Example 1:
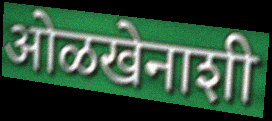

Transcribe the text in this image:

ओळखेनाशी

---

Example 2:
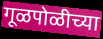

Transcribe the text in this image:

गूळपोळीच्या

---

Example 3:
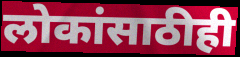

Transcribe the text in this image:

लोकांसाठीही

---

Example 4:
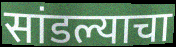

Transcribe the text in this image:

सांडल्याचा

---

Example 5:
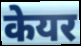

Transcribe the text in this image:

केयर